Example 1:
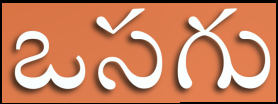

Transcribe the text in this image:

ఒసగు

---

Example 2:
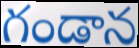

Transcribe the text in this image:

గండాన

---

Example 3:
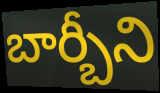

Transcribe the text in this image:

బార్బీని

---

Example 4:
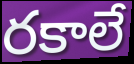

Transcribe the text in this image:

రకాలే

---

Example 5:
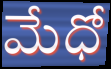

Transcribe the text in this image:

మేధో